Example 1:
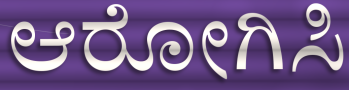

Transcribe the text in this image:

ಆರೋಗಿಸಿ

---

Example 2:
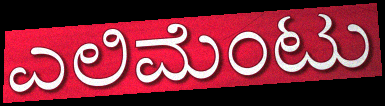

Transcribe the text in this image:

ಎಲಿಮೆಂಟು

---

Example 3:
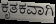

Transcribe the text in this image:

ಕೃತಕವಾಗಿ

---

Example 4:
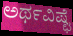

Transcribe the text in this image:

ಅರ್ಥವಿಷ್ಟೆ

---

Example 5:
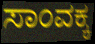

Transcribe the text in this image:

ಸಾಂವಕ್ಕ